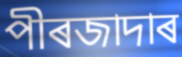
পীৰজাদাৰ